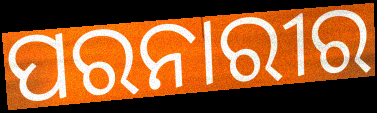
ପରନାରୀର